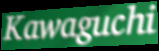
Kawaguchi